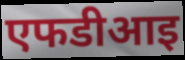
एफडीआइ